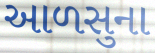
આળસુના